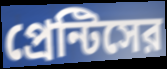
প্রেন্টিসের